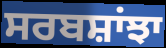
ਸਰਬਸ਼ਾਂਝਾ